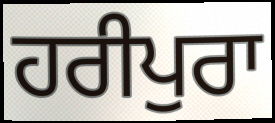
ਹਰੀਪੁਰਾ